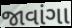
જાવાંગા